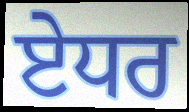
ਏਧਰ